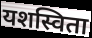
यशस्विता